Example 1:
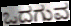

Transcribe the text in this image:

ಒದಗುವ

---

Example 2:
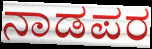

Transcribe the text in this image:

ನಾಡಪರ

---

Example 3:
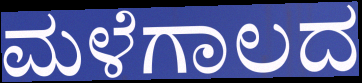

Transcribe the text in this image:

ಮಳೆಗಾಲದ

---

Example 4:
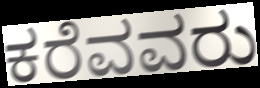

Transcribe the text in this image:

ಕರೆವವರು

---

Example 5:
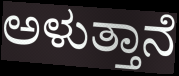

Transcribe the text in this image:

ಅಳುತ್ತಾನೆ